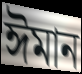
ঈমান